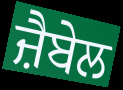
ਜ਼ੈਬੇਲ